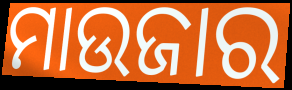
ମାଉଜାର